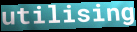
utilising